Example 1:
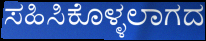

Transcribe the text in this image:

ಸಹಿಸಿಕೊಳ್ಳಲಾಗದ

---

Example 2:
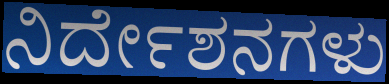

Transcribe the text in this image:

ನಿರ್ದೇಶನಗಳು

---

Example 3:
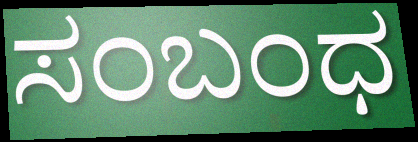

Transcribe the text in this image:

ಸಂಬಂಧ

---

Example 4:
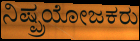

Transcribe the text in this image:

ನಿಷ್ಪ್ರಯೋಜಕರು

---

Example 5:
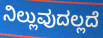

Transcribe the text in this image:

ನಿಲ್ಲುವುದಲ್ಲದೆ